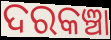
ଦରକଞ୍ଚା